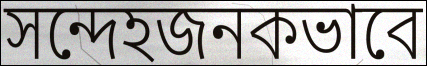
সন্দেহজনকভাবে